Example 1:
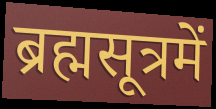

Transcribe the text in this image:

ब्रह्मसूत्रमें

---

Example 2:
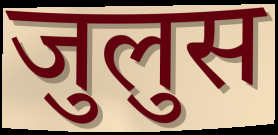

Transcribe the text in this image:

जुलुस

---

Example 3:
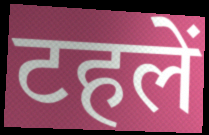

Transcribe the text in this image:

टहलें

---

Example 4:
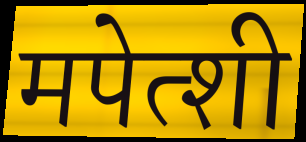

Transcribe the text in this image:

मपेत्शी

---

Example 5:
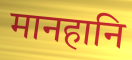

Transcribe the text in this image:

मानहानि